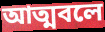
আত্মবলে